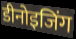
डीनोइजिंग